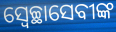
ସ୍ୱେଚ୍ଛାସେବୀଙ୍କ